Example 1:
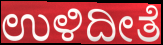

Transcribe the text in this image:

ಉಳಿದೀತೆ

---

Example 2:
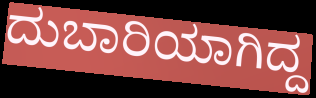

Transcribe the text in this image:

ದುಬಾರಿಯಾಗಿದ್ದ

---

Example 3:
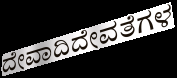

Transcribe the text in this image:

ದೇವಾದಿದೇವತೆಗಳ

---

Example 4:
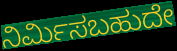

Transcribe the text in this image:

ನಿರ್ಮಿಸಬಹುದೇ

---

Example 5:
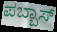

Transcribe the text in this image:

ಪಬ್ಬಾಸ್